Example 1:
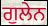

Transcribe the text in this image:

ਗੁਲੇਨ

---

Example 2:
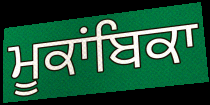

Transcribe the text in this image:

ਮੂਕਾਂਬਿਕਾ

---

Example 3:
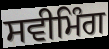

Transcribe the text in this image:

ਸਵੀਮਿੰਗ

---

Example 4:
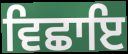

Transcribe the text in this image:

ਵਿਛਾਇ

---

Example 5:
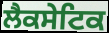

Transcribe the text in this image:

ਲੈਕਸੇਟਿਕ